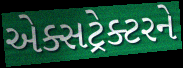
એક્સટ્રેક્ટરને